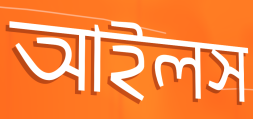
আইলস